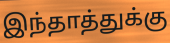
இந்தாத்துக்கு